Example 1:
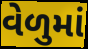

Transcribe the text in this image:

વેળુમાં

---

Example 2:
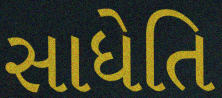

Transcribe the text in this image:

સાધેતિ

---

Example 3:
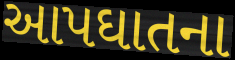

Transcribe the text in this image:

આપઘાતના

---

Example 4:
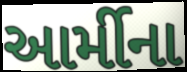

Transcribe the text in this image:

આર્મીના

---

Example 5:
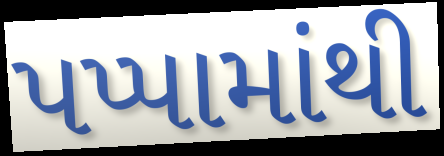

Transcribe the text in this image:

પપ્પામાંથી